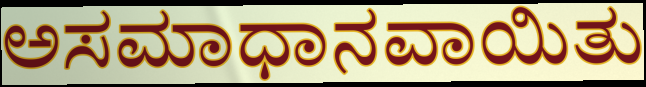
ಅಸಮಾಧಾನವಾಯಿತು